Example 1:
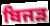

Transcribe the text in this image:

ਬਿਜੜ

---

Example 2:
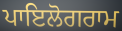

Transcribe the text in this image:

ਪਾਇਲੋਗਰਾਮ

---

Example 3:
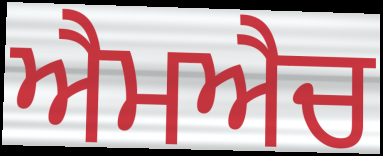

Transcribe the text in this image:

ਐਮਐਚ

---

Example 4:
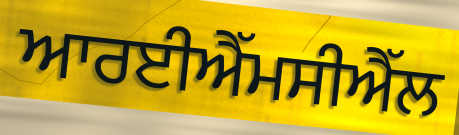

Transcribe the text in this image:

ਆਰਈਐੱਮਸੀਐੱਲ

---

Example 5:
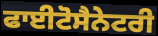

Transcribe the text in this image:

ਫਾਈਟੋਸੈਨੇਟਰੀ